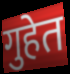
गुहेत